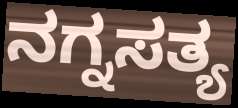
ನಗ್ನಸತ್ಯ